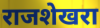
राजशेखरा